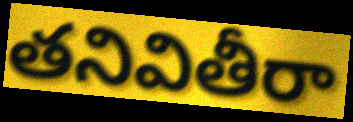
తనివితీరా